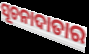
ସୂଚନାଦାତାର